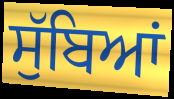
ਸੁੱਬਿਆਂ